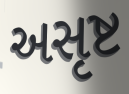
અસૃષ્ટ